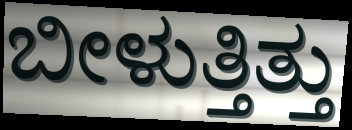
ಬೀಳುತ್ತಿತ್ತು